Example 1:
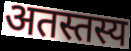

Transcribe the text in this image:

अतस्तस्य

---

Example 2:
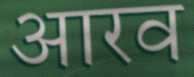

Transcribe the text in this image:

आरव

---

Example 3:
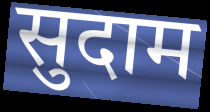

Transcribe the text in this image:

सुदाम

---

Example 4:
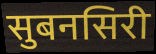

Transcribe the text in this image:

सुबनसिरी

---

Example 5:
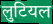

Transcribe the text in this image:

लुटियल